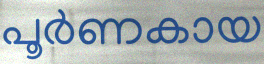
പൂർണകായ